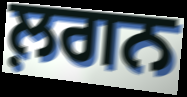
ਲ਼ਗਨ